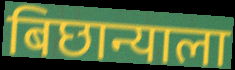
बिछान्याला